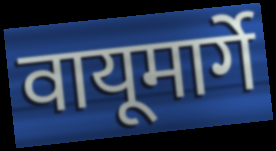
वायूमार्गे